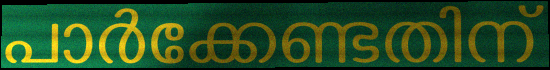
പാർക്കേണ്ടതിന്